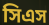
সিএস